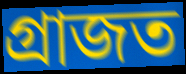
গ্ৰাজত